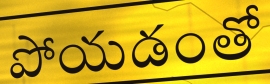
పోయడంతో